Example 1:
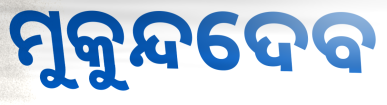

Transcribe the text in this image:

ମୁକୁନ୍ଦଦେବ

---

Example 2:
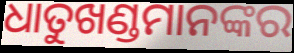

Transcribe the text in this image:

ଧାତୁଖଣ୍ଡମାନଙ୍କର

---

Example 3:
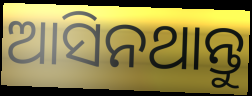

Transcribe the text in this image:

ଆସିନଥାନ୍ତୁ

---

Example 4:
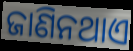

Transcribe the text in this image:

ଜାଣିନଥାଏ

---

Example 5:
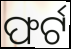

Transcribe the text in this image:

ଫର୍ଟ